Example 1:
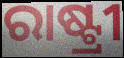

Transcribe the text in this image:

ରାଷ୍ଟ୍ରୀ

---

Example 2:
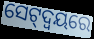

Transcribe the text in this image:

ସେଟ୍‌ଦ୍ଵୟରେ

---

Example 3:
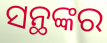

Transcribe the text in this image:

ସନ୍ଥଙ୍କର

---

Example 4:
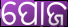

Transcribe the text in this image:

ପୋଜ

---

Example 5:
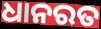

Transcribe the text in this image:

ଧାନରତ